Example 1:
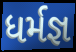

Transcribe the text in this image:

ધર્મજ્ઞ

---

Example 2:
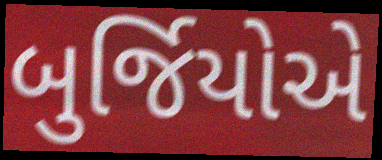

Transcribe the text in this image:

બુર્જિયોએ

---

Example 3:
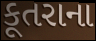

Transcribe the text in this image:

કૂતરાના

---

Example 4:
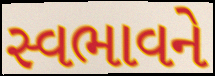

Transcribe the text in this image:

સ્વભાવને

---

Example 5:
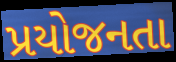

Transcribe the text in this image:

પ્રયોજનતા